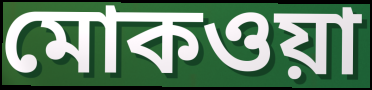
মোকওয়া